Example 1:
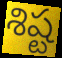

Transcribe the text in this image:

శిష్ట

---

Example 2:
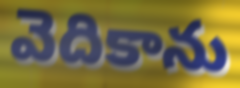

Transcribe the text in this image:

వెదికాను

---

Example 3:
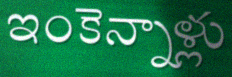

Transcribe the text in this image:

ఇంకెన్నాళ్లు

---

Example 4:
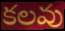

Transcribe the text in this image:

కలవు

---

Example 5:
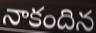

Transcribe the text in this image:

నాకందిన